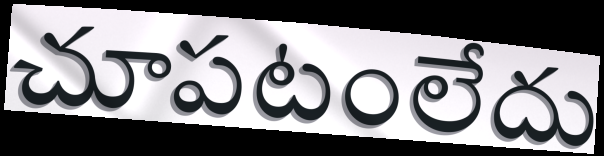
చూపటంలేదు